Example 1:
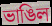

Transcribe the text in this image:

ভাঙিল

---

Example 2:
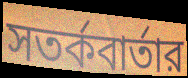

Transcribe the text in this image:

সতর্কবার্তার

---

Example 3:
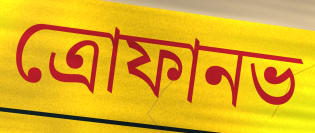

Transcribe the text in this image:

ত্রোফানভ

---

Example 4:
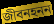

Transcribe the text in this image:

জীবনহনন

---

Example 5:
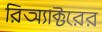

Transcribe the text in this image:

রিঅ্যাক্টরের